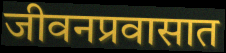
जीवनप्रवासात